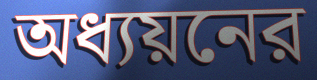
অধ্যয়নের